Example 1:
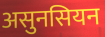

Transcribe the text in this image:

असुनसियन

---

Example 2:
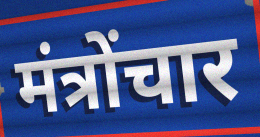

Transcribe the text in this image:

मंत्रोंचार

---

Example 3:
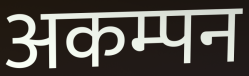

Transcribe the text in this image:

अकम्पन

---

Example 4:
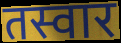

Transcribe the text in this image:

तस्वार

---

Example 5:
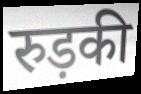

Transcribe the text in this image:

रुड़की